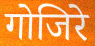
गोजिरे